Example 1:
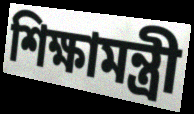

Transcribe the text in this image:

শিক্ষামন্ত্রী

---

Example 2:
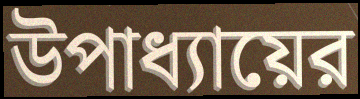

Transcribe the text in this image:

উপাধ্যায়ের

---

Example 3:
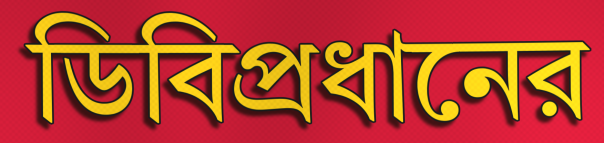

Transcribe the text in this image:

ডিবিপ্রধানের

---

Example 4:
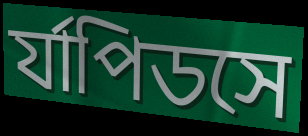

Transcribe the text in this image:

র্যাপিডসে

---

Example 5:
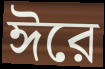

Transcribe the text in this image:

ঈরে